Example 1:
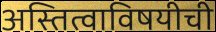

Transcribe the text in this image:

अस्तित्वाविषयीची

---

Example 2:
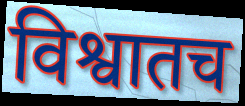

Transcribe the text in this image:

विश्वातच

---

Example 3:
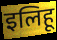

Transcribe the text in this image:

इलिहू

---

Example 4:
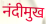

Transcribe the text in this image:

नंदीमुख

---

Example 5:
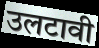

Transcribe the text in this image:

उलटावी